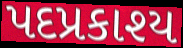
પદપ્રકાશ્ય